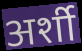
अर्शी